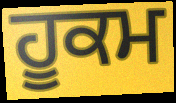
ਹੂਕਮ